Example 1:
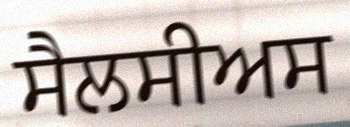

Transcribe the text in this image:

ਸੈਲਸੀਅਸ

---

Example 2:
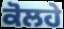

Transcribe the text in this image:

ਕੋਲਹੇ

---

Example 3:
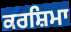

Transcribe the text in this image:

ਕਰਸ਼ਿਮਾ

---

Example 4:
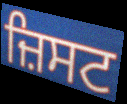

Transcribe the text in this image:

ਜ਼ਿਸਟ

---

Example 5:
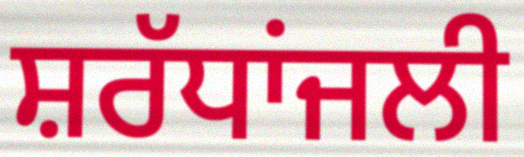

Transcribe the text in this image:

ਸ਼ਰੱਧਾਂਜਲੀ